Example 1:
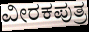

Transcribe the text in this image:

ವೀರಕಪುತ್ರ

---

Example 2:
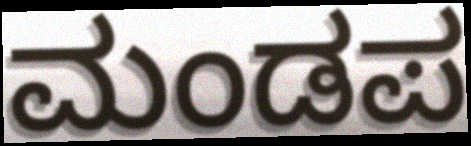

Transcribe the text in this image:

ಮಂಡಪ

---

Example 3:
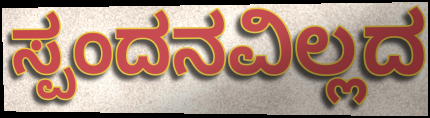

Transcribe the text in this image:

ಸ್ಪಂದನವಿಲ್ಲದ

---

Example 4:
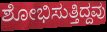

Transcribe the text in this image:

ಶೋಭಿಸುತ್ತಿದ್ದವು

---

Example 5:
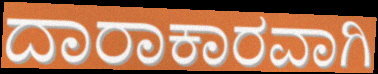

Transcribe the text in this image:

ದಾರಾಕಾರವಾಗಿ